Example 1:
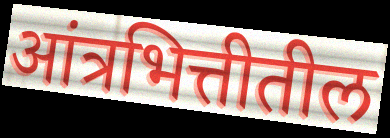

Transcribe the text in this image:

आंत्रभित्तीतील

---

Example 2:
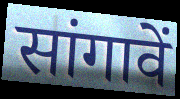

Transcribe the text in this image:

सांगावें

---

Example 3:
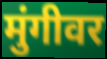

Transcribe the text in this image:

मुंगीवर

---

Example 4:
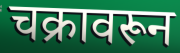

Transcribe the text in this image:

चक्रावरून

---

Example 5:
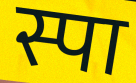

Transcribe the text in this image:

स्पा